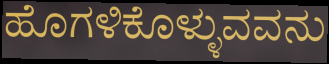
ಹೊಗಳಿಕೊಳ್ಳುವವನು